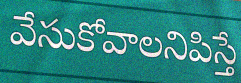
వేసుకోవాలనిపిస్తే